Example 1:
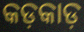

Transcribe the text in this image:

କଡ଼କାଡ଼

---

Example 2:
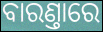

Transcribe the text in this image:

ବାରଣ୍ତାରେ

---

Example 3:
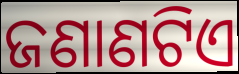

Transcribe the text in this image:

ଜଣାଣଟିଏ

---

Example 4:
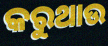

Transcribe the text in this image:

କରୁଥାଉ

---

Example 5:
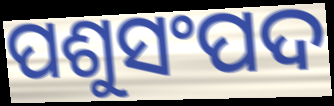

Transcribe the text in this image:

ପଶୁସଂପଦ